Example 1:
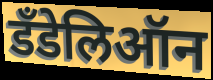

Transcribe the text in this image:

डँडेलिऑन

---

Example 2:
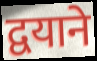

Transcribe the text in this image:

द्वयाने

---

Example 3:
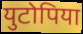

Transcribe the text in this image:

युटोपिया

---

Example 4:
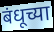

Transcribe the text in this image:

बंधूच्या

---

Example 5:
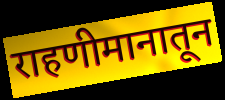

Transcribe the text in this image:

राहणीमानातून